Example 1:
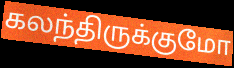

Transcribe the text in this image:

கலந்திருக்குமோ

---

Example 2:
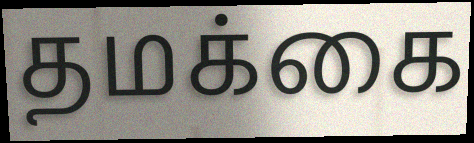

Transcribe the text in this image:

தமக்கை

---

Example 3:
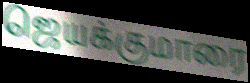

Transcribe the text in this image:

ஜெயக்குமாரை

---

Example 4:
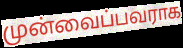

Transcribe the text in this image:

முன்வைப்பவராக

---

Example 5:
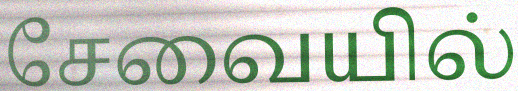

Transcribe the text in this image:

சேவையில்